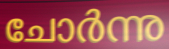
ചോർന്നു